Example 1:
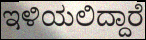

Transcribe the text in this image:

ಇಳಿಯಲಿದ್ದಾರೆ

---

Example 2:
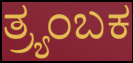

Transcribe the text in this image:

ತ್ರ್ಯಂಬಕ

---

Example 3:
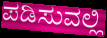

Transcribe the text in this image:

ಪಡಿಸುವಲ್ಲಿ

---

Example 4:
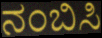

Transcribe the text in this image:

ನಂಬಿಸಿ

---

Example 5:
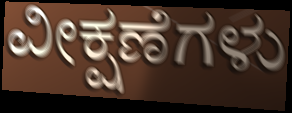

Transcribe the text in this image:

ವೀಕ್ಷಣೆಗಳು